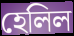
হেলিল